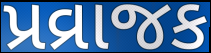
પ્રવ્રાજક